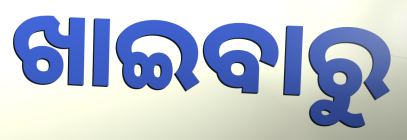
ଖାଇବାରୁ